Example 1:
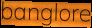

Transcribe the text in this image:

banglore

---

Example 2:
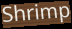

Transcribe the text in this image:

Shrimp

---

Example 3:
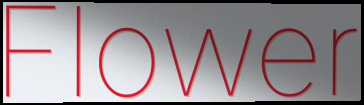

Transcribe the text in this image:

Flower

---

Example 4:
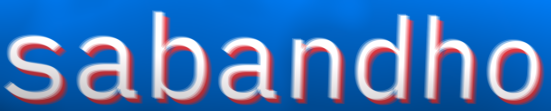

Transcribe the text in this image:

sabandho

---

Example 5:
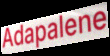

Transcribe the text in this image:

Adapalene